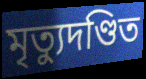
মৃত্যুদণ্ডিত